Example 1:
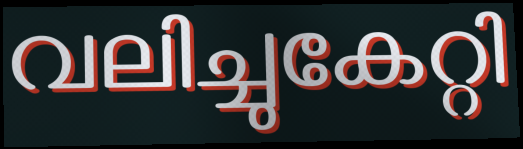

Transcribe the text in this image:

വലിച്ചുകേറ്റി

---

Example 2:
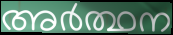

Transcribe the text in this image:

അർത്ഥന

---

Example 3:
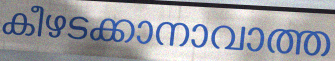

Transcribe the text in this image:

കീഴടക്കാനാവാത്ത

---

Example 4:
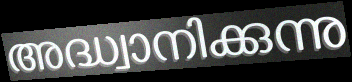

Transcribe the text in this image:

അദ്ധ്വാനിക്കുന്നു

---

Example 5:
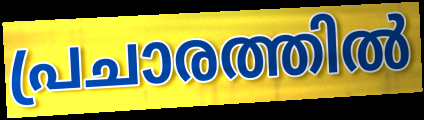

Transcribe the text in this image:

പ്രചാരത്തിൽ